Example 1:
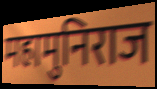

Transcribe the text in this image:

महामुनिराज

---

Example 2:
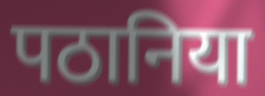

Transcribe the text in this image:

पठानिया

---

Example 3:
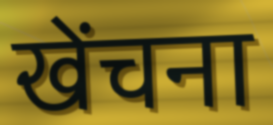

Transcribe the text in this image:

खेंचना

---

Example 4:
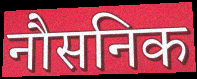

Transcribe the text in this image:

नौसनिक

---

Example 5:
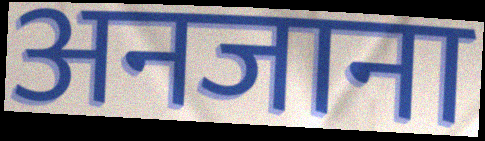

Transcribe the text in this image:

अनजाना